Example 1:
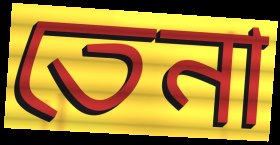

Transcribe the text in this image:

তেনা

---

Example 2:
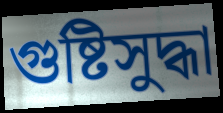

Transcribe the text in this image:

গুষ্টিসুদ্ধা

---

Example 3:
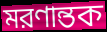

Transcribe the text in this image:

মরণান্তক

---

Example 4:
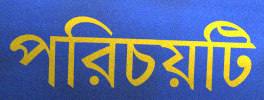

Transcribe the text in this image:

পরিচয়টি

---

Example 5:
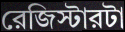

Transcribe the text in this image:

রেজিস্টারটা